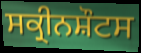
ਸਕ੍ਰੀਨਸ਼ੌਟਸ